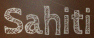
Sahiti